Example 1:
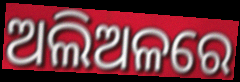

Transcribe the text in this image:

ଅଲିଅଳରେ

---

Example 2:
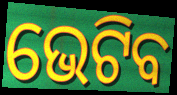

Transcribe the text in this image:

ଭେଟିବ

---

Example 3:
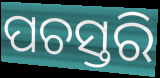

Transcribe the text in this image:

ପଚସ୍ତରି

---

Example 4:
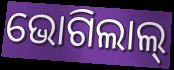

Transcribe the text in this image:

ଭୋଗିଲାଲ୍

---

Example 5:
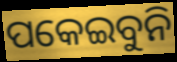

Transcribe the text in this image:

ପକେଇବୁନି